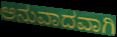
ಅನುವಾದವಾಗಿ